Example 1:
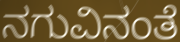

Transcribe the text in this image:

ನಗುವಿನಂತೆ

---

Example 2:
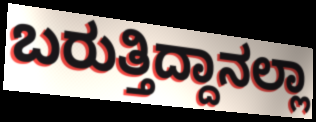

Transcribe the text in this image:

ಬರುತ್ತಿದ್ದಾನಲ್ಲಾ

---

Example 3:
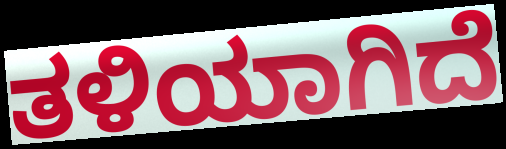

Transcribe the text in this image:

ತಳಿಯಾಗಿದೆ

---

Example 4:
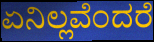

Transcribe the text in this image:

ಏನಿಲ್ಲವೆಂದರೆ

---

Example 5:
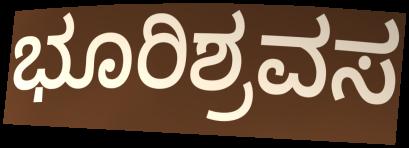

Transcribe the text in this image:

ಭೂರಿಶ್ರವಸ